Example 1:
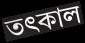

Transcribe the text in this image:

তৎকাল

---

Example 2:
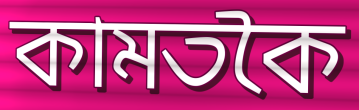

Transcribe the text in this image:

কামতকৈ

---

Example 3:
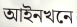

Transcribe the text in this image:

আইনখনে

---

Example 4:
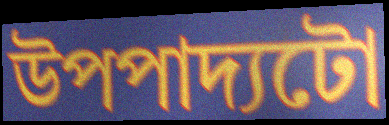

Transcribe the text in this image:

উপপাদ্যটো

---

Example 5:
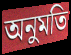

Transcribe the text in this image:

অনুমতি